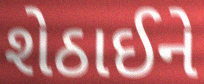
શેઠાઈને